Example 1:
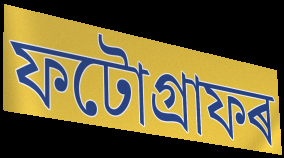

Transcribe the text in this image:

ফটোগ্ৰাফৰ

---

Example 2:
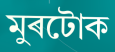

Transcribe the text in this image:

মুৰটোক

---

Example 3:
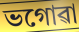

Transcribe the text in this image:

ভগোৱা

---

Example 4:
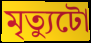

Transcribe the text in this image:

মৃত্যুটো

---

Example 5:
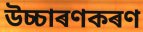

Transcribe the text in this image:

উচ্চাৰণকৰণ